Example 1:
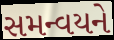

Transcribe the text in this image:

સમન્વયને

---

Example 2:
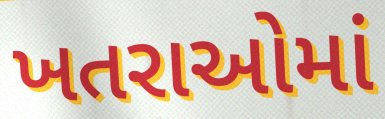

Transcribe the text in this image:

ખતરાઓમાં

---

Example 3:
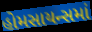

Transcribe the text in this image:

હોમસાયન્સમાં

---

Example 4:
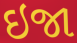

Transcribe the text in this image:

ઇજા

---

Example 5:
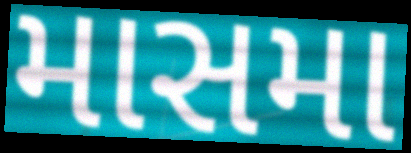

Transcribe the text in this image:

માસમા